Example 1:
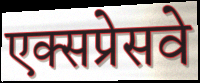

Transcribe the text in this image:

एक्सप्रेसवे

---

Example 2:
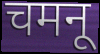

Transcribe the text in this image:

चमनू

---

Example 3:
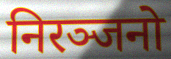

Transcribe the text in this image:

निरञ्जनो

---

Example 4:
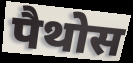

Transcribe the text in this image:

पैथोस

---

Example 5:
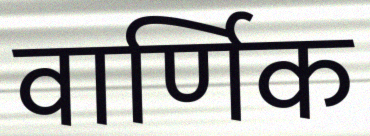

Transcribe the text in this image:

वार्णिक